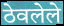
ठेवलेले